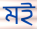
মই